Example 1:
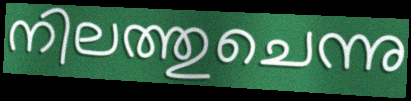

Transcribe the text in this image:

നിലത്തുചെന്നു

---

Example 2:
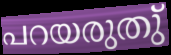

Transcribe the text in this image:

പറയരുതു്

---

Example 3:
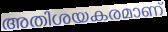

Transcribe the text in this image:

അതിശയകരമാണ്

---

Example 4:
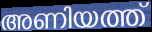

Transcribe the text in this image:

അണിയത്ത്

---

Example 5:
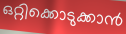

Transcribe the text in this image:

ഒറ്റിക്കൊടുക്കാൻ